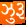
ઝુરૂ